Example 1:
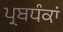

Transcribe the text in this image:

ਪ੍ਰਬਧੰਕਾਂ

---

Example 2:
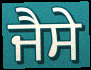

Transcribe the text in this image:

ਜੈਸੇ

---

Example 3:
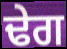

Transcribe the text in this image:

ਢੇਗ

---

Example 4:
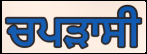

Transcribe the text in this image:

ਚਪੜਾਸੀ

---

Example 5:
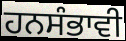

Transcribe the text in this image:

ਹਨਸੰਭਾਵੀ